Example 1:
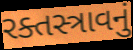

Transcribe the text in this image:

રક્તસ્ત્રાવનું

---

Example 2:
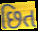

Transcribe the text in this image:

છિત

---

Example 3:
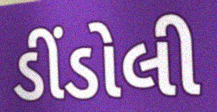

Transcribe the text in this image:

ડીંડોલી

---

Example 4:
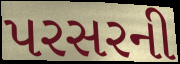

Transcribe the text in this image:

પરસરની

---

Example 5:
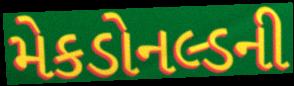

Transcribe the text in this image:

મેકડોનલ્ડની